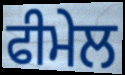
ਫੀਮੇਲ